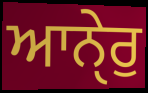
ਆਨੇੑਰੁ